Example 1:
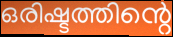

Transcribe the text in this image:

ഒരിഷ്ടത്തിന്റെ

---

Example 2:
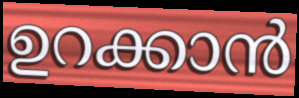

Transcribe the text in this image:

ഉറക്കാൻ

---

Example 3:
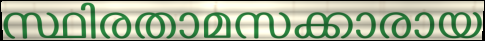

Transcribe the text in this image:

സ്ഥിരതാമസക്കാരായ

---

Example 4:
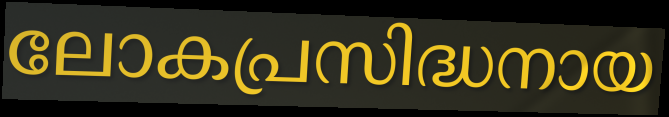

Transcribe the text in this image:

ലോകപ്രസിദ്ധനായ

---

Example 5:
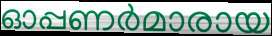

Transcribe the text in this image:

ഓപ്പണർമാരായ